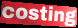
costing